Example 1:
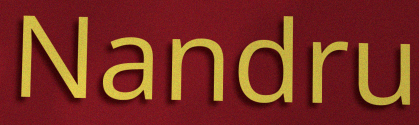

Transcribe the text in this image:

Nandru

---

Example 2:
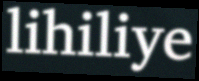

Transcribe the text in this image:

lihiliye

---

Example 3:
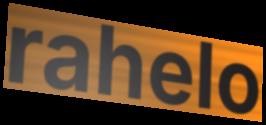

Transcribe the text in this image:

rahelo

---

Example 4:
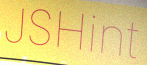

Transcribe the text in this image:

JSHint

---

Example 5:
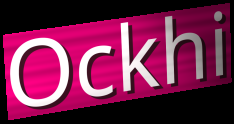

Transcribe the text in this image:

Ockhi